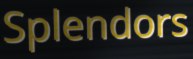
Splendors